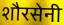
शौरसेनी